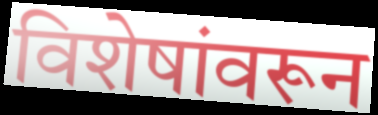
विशेषांवरून